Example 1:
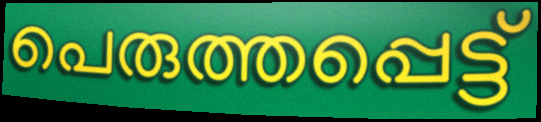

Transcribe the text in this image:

പെരുത്തപ്പെട്ട്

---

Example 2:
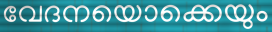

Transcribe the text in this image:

വേദനയൊക്കെയും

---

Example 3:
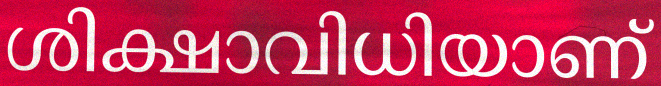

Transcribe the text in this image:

ശിക്ഷാവിധിയാണ്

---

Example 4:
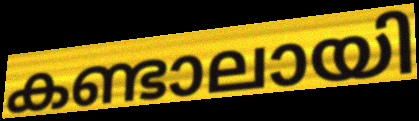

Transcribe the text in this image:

കണ്ടാലായി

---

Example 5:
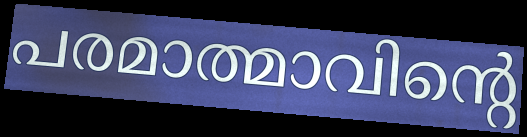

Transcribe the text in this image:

പരമാത്മാവിന്റെ